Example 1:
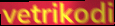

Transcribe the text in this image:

vetrikodi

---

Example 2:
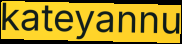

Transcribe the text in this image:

kateyannu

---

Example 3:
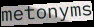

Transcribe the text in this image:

metonyms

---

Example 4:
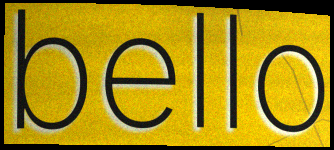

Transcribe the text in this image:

bello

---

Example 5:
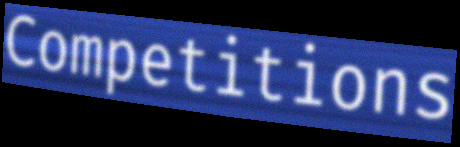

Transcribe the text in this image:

Competitions